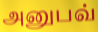
அனுபவ்